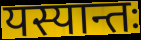
यस्यान्तः